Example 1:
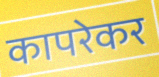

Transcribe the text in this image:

कापरेकर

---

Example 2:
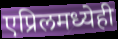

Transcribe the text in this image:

एप्रिलमध्येही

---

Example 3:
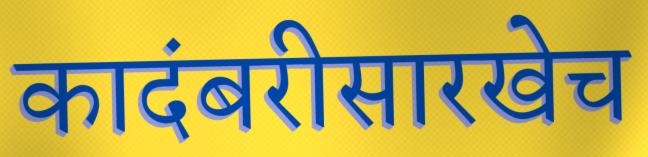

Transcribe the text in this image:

कादंबरीसारखेच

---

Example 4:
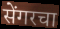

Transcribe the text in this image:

सेंगरचा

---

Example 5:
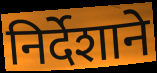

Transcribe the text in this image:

निर्देशाने